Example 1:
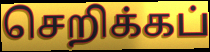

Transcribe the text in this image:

செறிக்கப்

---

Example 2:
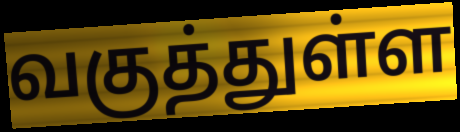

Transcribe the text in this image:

வகுத்துள்ள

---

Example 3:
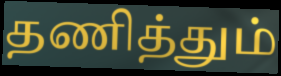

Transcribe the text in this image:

தணித்தும்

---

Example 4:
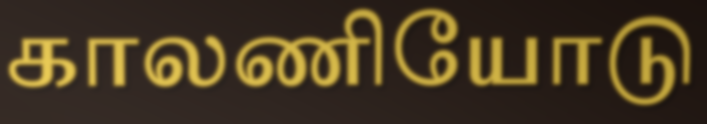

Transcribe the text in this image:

காலணியோடு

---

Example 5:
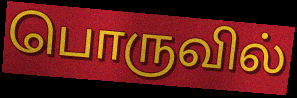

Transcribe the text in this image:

பொருவில்